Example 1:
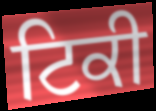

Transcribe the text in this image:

ਟਿਕੀ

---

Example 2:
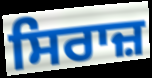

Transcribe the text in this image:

ਸਿਰਾਜ਼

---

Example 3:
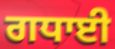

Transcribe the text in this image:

ਗਧਾਈ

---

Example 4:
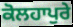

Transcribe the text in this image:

ਕੋਲਹਾਪੁਰੇ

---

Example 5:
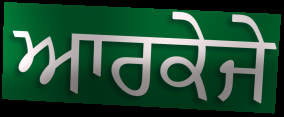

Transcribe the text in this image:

ਆਰਕੇਜੇ